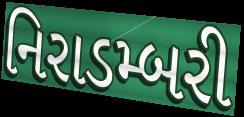
નિરાડમ્બરી